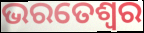
ଭରତେଶ୍ଵର